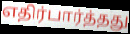
எதிர்பார்த்தது